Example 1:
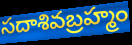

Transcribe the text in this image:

సదాశివబ్రహ్మం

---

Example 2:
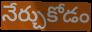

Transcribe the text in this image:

నేర్చుకోడం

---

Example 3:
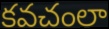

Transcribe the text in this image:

కవచంలా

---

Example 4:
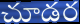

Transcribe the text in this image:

చూడర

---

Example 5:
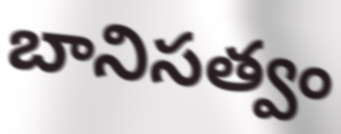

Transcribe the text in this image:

బానిసత్వం